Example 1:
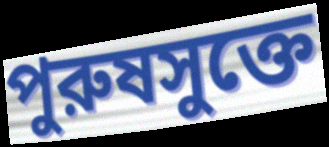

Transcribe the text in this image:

পুরুষসুক্তে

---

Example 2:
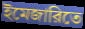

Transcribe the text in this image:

ইমেজারিতে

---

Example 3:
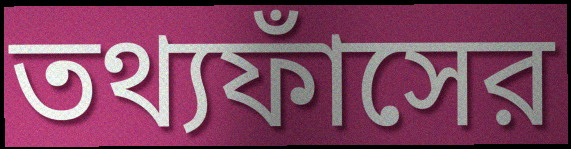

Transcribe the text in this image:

তথ্যফাঁসের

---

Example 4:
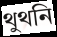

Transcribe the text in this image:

থুথনি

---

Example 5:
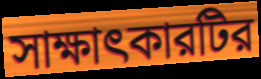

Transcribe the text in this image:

সাক্ষাৎকারটির